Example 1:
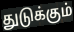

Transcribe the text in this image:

துடுக்கும்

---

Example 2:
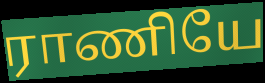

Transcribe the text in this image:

ராணியே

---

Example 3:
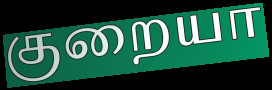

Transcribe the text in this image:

குறையா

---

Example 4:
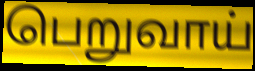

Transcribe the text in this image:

பெறுவாய்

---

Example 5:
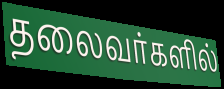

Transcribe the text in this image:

தலைவர்களில்